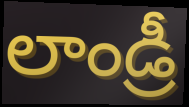
లాండ్రీ